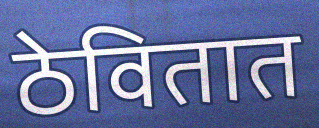
ठेवितात